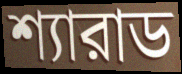
শ্যারাড